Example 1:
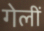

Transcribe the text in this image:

गेलीं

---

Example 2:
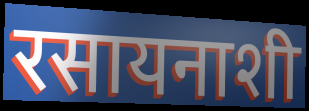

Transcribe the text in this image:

रसायनाशी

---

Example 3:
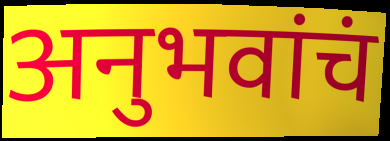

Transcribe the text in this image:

अनुभवांचं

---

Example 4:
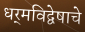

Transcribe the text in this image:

धर्मविद्वेषाचे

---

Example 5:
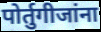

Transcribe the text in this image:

पोर्तुगीजांना